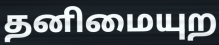
தனிமையுற